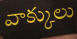
వాక్కులు